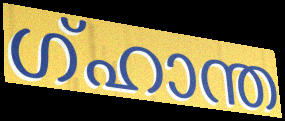
ഗ്ഹാന്ത